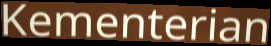
Kementerian